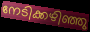
നേടിക്കഴിഞ്ഞു